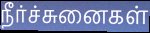
நீர்ச்சுனைகள்